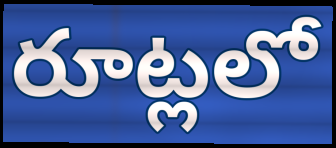
రూట్లలో